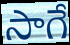
సాగే